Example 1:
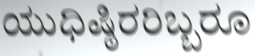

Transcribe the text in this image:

ಯುಧಿಷ್ಠಿರರಿಬ್ಬರೂ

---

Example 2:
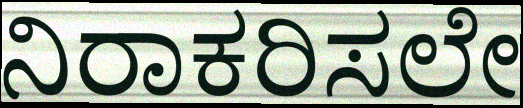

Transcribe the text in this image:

ನಿರಾಕರಿಸಲೇ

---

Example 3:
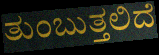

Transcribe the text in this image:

ತುಂಬುತ್ತಲಿದೆ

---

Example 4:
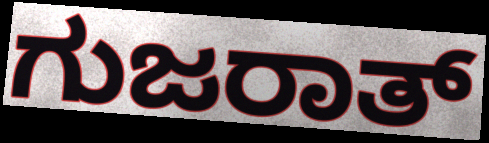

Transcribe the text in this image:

ಗುಜರಾತ್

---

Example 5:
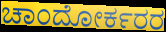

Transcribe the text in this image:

ಚಾಂದೋರ್ಕರರ